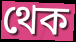
থেক